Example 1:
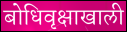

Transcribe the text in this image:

बोधिवृक्षाखाली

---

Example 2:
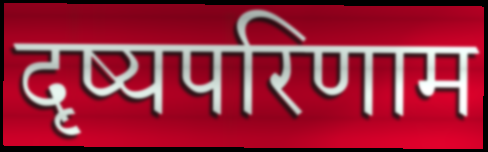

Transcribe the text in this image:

दृष्यपरिणाम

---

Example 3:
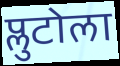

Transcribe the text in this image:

प्लुटोला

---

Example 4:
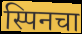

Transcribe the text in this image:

स्पिनचा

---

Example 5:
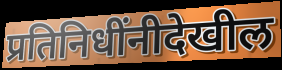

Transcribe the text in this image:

प्रतिनिधींनीदेखील